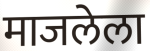
माजलेला